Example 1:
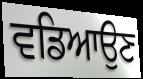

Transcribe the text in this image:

ਵਡਿਆਉਣ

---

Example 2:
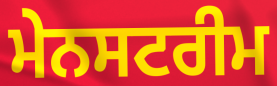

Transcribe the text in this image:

ਮੇਨਸਟਰੀਮ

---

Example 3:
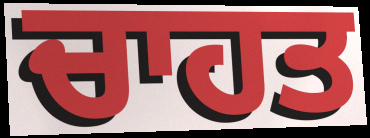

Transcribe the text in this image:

ਚਾਹਤ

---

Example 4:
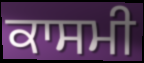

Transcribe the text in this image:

ਕਾਸਮੀ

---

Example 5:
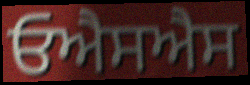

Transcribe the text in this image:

ਓਐਸਐਸ